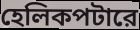
হেলিকপটারে